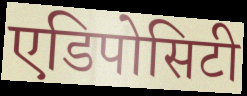
एडिपोसिटी